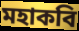
মহাকবি